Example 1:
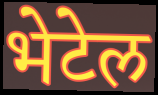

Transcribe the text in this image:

भेटेल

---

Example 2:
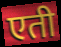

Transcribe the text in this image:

एती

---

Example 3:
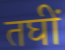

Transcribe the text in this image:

तघीं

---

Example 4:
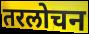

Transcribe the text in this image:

तरलोचन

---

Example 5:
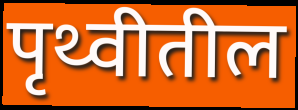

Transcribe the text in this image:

पृथ्वीतील